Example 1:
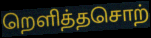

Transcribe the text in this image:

றெளித்தசொற்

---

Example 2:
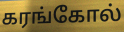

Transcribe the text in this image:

கரங்கோல்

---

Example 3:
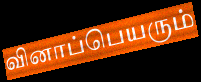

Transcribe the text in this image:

வினாப்பெயரும்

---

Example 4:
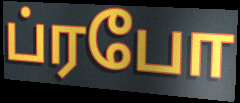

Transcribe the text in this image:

ப்ரபோ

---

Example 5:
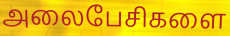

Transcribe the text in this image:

அலைபேசிகளை